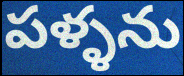
పళ్ళను